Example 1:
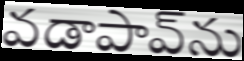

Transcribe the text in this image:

వడాపావ్‌ను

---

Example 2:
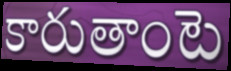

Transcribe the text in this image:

కారుతాంటె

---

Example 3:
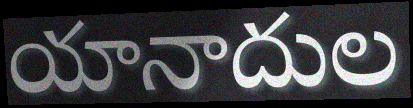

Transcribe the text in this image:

యానాదుల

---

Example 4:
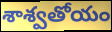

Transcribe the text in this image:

శాశ్వతోయం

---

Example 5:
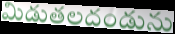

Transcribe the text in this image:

మిడుతలదండును